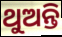
ଥୁଅନ୍ତି